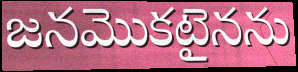
జనమొకటైనను